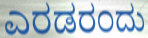
ಎರಡರಂದು